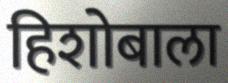
हिशोबाला